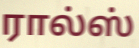
ரால்ஸ்